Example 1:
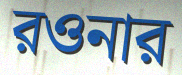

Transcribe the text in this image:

রওনার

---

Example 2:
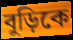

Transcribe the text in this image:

বুড়িকে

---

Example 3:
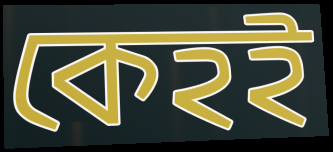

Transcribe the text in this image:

কেহই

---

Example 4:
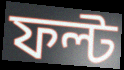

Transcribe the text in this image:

ফল্ট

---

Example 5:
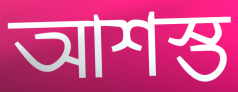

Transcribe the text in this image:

আশস্ত